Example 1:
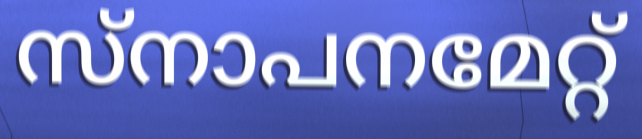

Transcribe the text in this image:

സ്നാപനമേറ്റ്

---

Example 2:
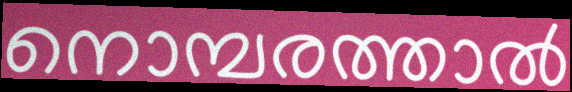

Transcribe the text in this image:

നൊമ്പരത്താൽ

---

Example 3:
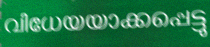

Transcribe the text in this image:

വിധേയയാക്കപ്പെട്ടു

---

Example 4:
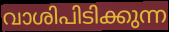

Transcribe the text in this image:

വാശിപിടിക്കുന്ന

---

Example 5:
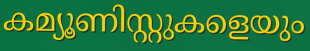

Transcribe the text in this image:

കമ്യൂണിസ്റ്റുകളെയും